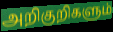
அறிகுறிகளும்